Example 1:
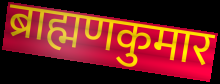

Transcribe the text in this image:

ब्राह्मणकुमार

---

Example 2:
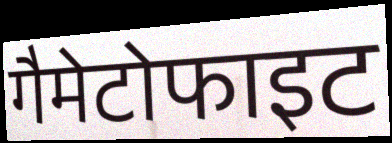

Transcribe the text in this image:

गैमेटोफाइट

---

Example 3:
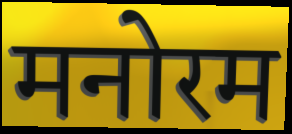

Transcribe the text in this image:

मनोरम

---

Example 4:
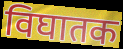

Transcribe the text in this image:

विघातक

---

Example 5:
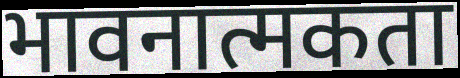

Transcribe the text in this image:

भावनात्मकता